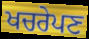
ਖਚਰੇਪਣ